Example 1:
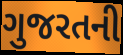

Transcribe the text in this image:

ગુજરતની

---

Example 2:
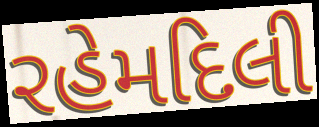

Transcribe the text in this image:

રહેમદિલી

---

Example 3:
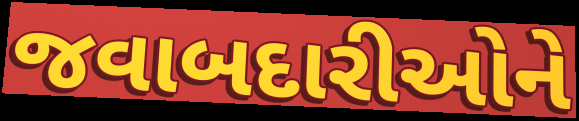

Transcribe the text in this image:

જવાબદારીઓને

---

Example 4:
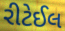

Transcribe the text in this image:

રીટેઈલ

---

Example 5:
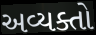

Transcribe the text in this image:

અવ્યક્તો